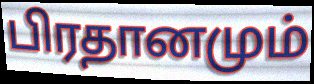
பிரதானமும்